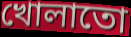
খোলাতো